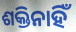
ଶକ୍ତିନାହିଁ